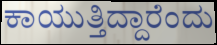
ಕಾಯುತ್ತಿದ್ದಾರೆಂದು